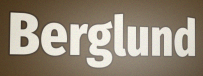
Berglund